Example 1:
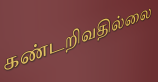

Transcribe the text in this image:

கண்டறிவதில்லை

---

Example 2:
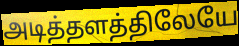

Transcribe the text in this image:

அடித்தளத்திலேயே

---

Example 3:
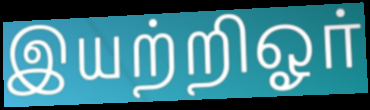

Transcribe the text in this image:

இயற்றிஓர்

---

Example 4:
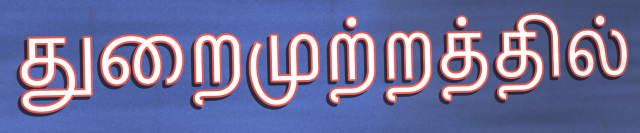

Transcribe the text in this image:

துறைமுற்றத்தில்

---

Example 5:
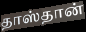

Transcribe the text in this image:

தாஸ்தான்